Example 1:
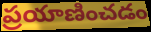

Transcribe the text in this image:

ప్రయాణించడం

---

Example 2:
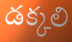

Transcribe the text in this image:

డక్కలి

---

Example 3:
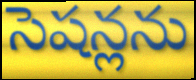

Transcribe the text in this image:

సెషన్లను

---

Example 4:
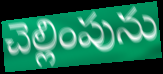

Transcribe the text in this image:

చెల్లింపును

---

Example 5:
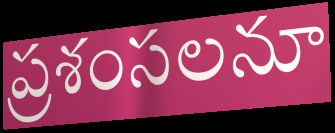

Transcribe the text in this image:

ప్రశంసలనూ